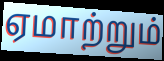
ஏமாற்றும்